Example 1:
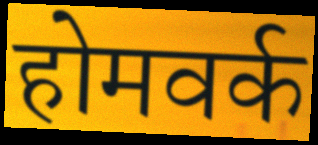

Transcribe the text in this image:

होमवर्क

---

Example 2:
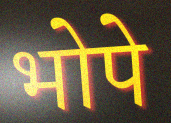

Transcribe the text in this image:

भोपे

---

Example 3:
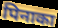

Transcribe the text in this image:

पिनाका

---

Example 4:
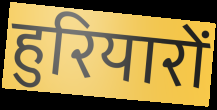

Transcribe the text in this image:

हुरियारों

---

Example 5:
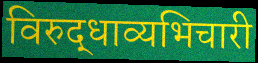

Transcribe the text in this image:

विरुद्धाव्यभिचारी